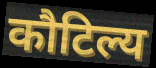
कौटिल्य